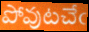
పోవుటచేఁ